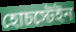
হোচস্টেইন